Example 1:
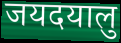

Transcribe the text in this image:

जयदयालु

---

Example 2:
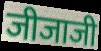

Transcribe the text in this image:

जीजाजी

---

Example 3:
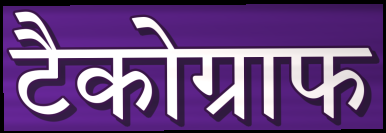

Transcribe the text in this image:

टैकोग्राफ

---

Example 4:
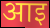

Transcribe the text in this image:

आइ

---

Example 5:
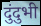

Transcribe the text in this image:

दुंदुभी